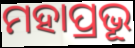
ମହାପ୍ରଭୂ